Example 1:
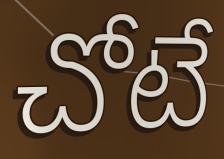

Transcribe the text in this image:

చోటే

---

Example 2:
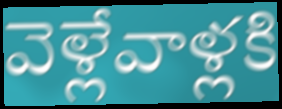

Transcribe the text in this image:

వెళ్లేవాళ్లకి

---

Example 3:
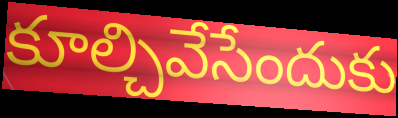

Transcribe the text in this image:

కూల్చివేసేందుకు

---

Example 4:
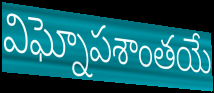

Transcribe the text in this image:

విఘ్నోపశాంతయే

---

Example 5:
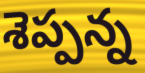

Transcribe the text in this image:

శెప్పన్న